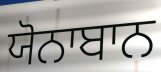
ਯੋਨਾਬਾਨ